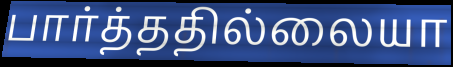
பார்த்ததில்லையா